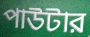
পাউটার